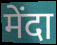
मेंदा